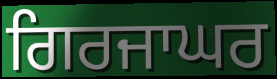
ਗਿਰਜਾਘਰ